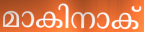
മാകിനാക്